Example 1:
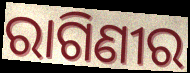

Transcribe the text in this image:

ରାଗିଣୀର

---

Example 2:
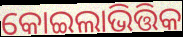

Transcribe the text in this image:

କୋଇଲାଭିତ୍ତିକ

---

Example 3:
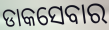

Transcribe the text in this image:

ଡାକସେବାର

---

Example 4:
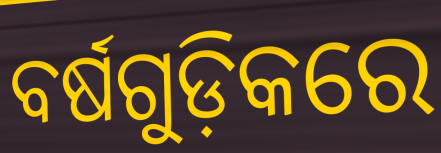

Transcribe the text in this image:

ବର୍ଷଗୁଡ଼ିକରେ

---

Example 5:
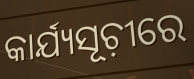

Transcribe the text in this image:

କାର୍ଯ୍ୟସୂଚ଼ୀରେ